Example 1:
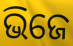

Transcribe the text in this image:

ଭିଜେ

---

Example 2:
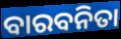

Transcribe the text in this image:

ବାରବନିତା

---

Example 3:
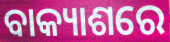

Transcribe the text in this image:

ବାକ୍ୟାଶରେ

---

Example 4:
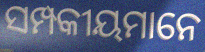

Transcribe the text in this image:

ସମ୍ପକୀୟମାନେ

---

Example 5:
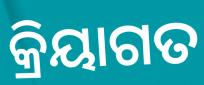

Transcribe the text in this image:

କ୍ରିୟାଗତ